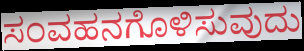
ಸಂವಹನಗೊಳಿಸುವುದು